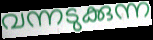
വന്നടുക്കുന്ന